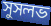
সুসলভ